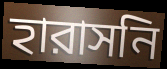
হারাসনি